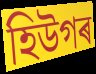
হিউগৰ